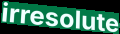
irresolute